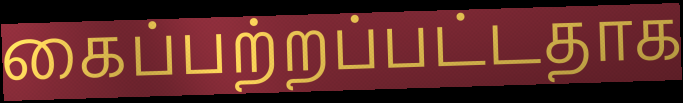
கைப்பற்றப்பட்டதாக